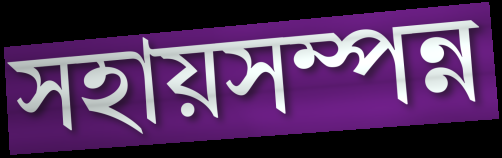
সহায়সম্পন্ন